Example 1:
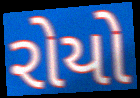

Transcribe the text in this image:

રોયો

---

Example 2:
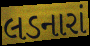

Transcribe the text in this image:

લડનારાં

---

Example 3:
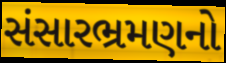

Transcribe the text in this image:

સંસારભ્રમણનો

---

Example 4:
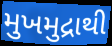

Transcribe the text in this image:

મુખમુદ્રાથી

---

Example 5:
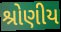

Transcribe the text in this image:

શ્રોણીય